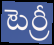
టెర్రీ